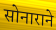
सोनाराने